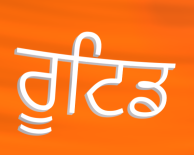
ਰੂਟਿਡ